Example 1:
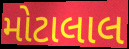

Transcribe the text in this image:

મોટાલાલ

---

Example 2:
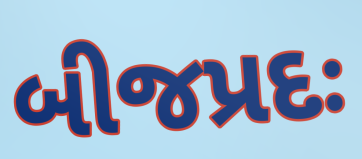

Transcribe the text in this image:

બીજપ્રદઃ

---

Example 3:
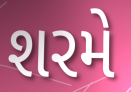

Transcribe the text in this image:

શરમે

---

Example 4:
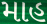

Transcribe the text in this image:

માહ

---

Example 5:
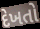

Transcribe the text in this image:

દેખતો